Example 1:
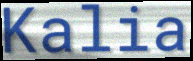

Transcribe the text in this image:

Kalia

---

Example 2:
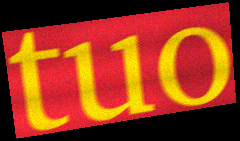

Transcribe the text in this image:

tuo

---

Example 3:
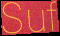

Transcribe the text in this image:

Suf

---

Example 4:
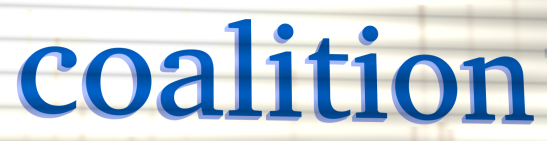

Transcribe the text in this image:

coalition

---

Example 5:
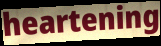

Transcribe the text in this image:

heartening